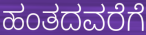
ಹಂತದವರೆಗೆ